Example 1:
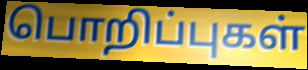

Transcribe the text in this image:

பொறிப்புகள்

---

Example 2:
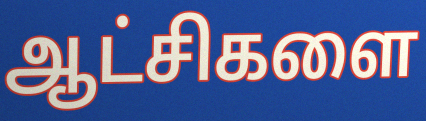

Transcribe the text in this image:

ஆட்சிகளை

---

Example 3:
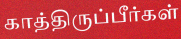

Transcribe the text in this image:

காத்திருப்பீர்கள்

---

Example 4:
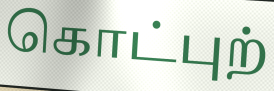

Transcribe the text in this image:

கொட்புற்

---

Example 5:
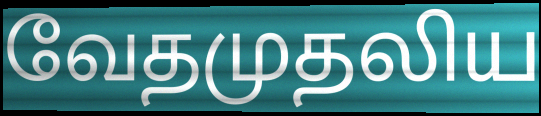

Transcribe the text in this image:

வேதமுதலிய